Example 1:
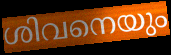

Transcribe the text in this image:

ശിവനെയും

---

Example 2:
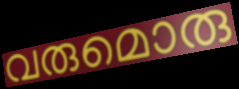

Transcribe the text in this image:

വരുമൊരു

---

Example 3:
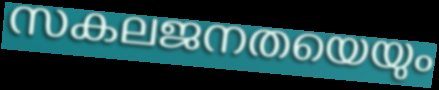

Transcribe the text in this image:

സകലജനതയെയും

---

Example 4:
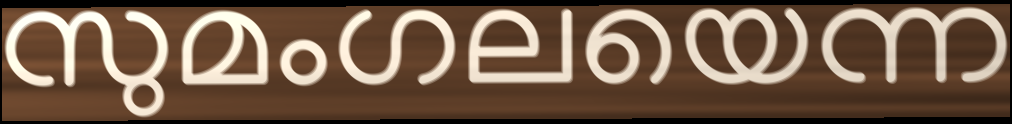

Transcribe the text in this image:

സുമംഗലയെന്ന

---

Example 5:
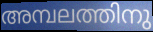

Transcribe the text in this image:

അമ്പലത്തിനു